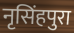
नृसिंहपुरा